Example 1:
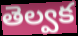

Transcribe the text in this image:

తెల్వక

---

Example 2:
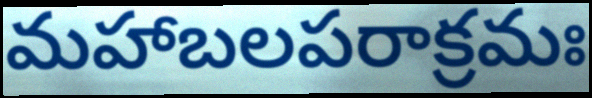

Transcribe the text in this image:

మహాబలపరాక్రమః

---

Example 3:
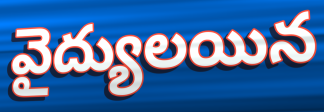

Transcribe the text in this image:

వైద్యులయిన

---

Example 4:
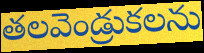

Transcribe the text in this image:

తలవెండ్రుకలను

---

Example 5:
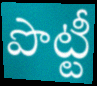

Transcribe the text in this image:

పొట్టీ